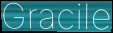
Gracile